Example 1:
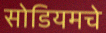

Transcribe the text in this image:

सोडियमचे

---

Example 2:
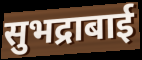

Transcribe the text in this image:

सुभद्राबाई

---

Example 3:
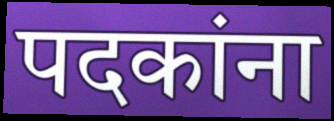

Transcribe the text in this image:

पदकांना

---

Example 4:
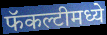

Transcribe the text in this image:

फॅकल्टीमध्ये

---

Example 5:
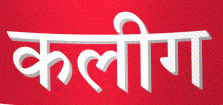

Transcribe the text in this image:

कलीग